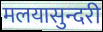
मलयासुन्दरी